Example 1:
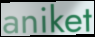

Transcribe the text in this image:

aniket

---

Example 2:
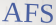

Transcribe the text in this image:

AFS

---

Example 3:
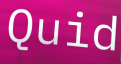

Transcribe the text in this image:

Quid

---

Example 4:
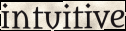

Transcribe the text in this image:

intuitive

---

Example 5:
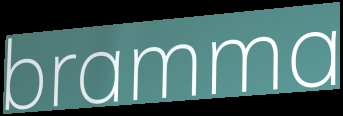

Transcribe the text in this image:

bramma